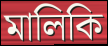
মালিকি